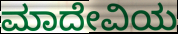
ಮಾದೇವಿಯ